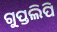
ଗୁପ୍ତଲିପି